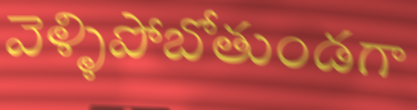
వెళ్ళిపోబోతుండగా